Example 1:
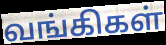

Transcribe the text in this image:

வங்கிகள்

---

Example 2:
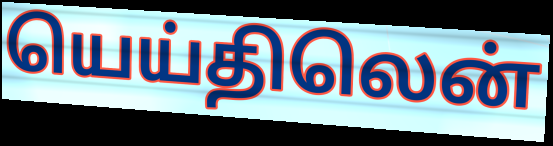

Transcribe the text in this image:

யெய்திலென்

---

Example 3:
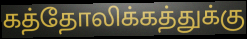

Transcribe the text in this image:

கத்தோலிக்கத்துக்கு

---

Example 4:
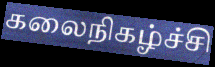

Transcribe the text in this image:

கலைநிகழ்ச்சி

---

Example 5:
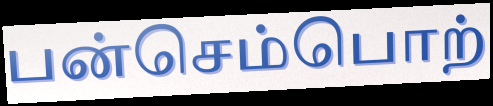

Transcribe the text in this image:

பன்செம்பொற்